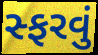
સ્ફરવું